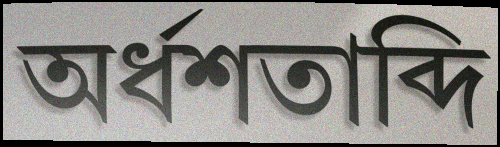
অর্ধশতাব্দি